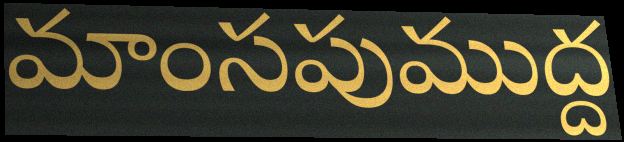
మాంసపుముద్ద